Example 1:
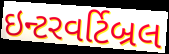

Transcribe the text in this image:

ઇન્ટરવર્ટિબ્રલ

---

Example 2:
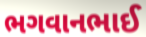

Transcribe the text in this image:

ભગવાનભાઈ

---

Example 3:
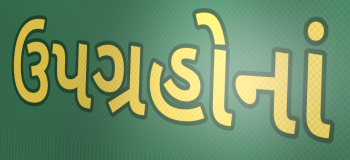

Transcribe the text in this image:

ઉપગ્રહોનાં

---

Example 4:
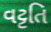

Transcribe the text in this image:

વટ્ટતિ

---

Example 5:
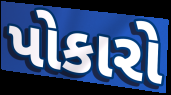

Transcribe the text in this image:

પોકારો